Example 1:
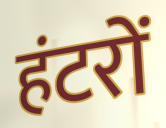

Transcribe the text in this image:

हंटरों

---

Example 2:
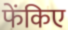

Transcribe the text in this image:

फेंकिए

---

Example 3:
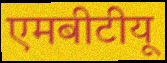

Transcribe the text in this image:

एमबीटीयू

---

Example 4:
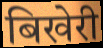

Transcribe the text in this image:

बिखेरी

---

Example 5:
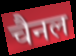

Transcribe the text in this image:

चैनल